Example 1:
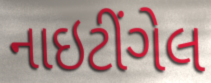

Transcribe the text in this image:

નાઇટીંગેલ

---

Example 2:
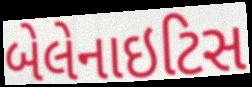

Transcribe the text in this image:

બેલેનાઇટિસ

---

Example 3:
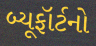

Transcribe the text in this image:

બ્યૂફૉર્ટનો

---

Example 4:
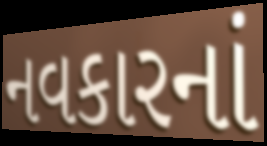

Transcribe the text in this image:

નવકારનાં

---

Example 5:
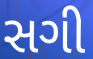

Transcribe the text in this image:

સગી